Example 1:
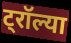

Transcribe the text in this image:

ट्रॉल्या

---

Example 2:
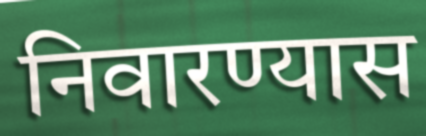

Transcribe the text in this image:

निवारण्यास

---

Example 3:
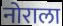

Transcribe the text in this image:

नोराला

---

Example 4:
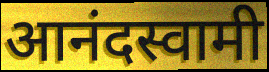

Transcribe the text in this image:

आनंदस्वामी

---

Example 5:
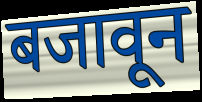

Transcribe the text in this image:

बजावून